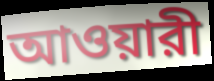
আওয়ারী